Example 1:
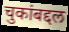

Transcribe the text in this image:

चुकांबद्दल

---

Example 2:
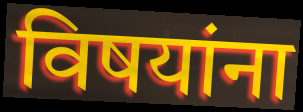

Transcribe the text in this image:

विषयांना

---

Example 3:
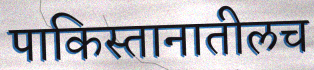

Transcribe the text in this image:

पाकिस्तानातीलच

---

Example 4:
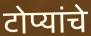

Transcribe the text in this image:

टोप्यांचे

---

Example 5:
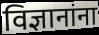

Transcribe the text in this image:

विज्ञानांना